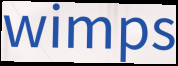
wimps